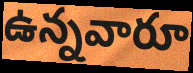
ఉన్నవారూ